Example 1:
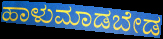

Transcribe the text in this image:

ಹಾಳುಮಾಡಬೇಡ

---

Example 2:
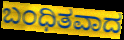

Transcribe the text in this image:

ಬಂಧಿತವಾದ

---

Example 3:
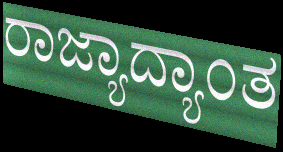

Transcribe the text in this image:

ರಾಜ್ಯಾದ್ಯಾಂತ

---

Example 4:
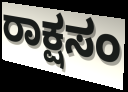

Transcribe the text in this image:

ರಾಕ್ಷಸಂ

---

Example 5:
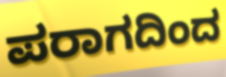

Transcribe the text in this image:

ಪರಾಗದಿಂದ